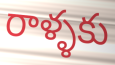
రాళ్ళకు